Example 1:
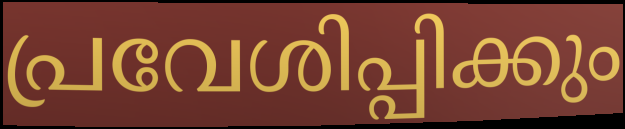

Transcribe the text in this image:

പ്രവേശിപ്പിക്കും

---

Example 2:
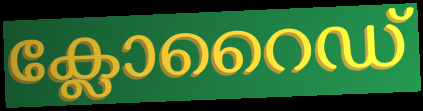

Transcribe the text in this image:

ക്ലോറൈഡ്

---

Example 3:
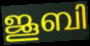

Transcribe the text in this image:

ജൂബി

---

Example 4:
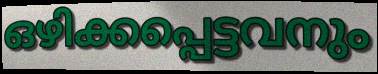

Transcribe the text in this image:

ഒഴിക്കപ്പെട്ടവനും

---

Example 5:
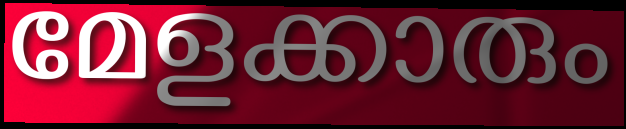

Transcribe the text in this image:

മേളക്കാരും